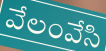
వేలంవేసి